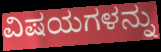
ವಿಷಯಗಳನ್ನು